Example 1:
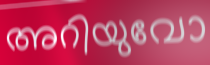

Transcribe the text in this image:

അറിയുവോ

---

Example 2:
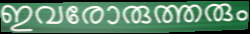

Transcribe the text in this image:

ഇവരോരുത്തരും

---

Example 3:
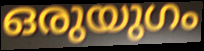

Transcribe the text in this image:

ഒരുയുഗം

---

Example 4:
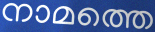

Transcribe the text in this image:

നാമത്തെ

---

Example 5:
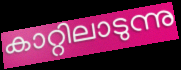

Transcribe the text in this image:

കാറ്റിലാടുന്നു